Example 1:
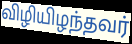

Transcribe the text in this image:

விழியிழந்தவர்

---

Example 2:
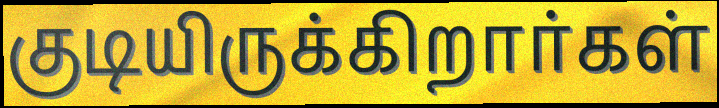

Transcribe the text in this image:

குடியிருக்கிறார்கள்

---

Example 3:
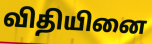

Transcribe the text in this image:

விதியினை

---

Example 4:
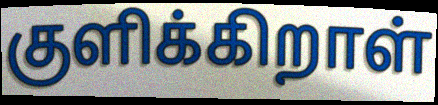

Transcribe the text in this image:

குளிக்கிறாள்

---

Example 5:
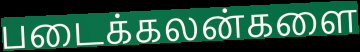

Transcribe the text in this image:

படைக்கலன்களை